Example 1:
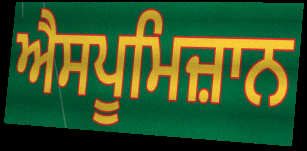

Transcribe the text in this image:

ਐਸਪੂਮਿਜ਼ਾਨ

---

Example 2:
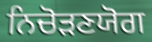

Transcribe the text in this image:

ਨਿਚੋੜਣਯੋਗ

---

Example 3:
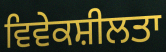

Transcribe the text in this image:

ਵਿਵੇਕਸ਼ੀਲਤਾ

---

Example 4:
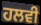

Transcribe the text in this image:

ਹਲਵੀ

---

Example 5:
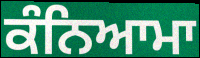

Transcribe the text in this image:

ਕੰਨਿਆਮਾ